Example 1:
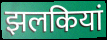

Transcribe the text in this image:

झलकियां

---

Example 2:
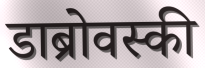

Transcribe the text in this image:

डाब्रोवस्की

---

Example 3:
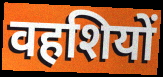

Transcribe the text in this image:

वहशियों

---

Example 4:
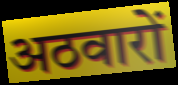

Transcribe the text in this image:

अठवारों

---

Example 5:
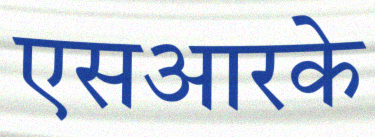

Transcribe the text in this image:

एसआरके